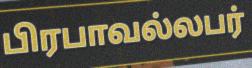
பிரபாவல்லபர்